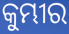
କୁମ୍ଭୀର